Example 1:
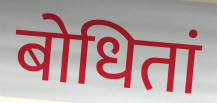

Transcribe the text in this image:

बोधितां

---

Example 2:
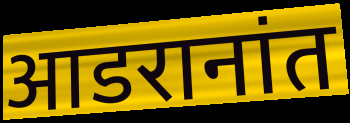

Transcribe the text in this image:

आडरानांत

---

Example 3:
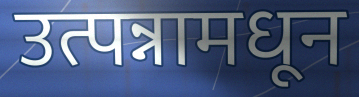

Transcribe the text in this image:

उत्पन्नामधून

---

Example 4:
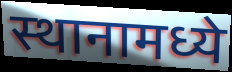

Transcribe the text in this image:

स्थानामध्ये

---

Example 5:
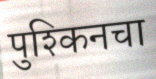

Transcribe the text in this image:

पुश्किनचा